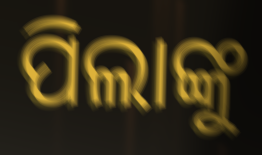
ପିଲାଙ୍କୁ